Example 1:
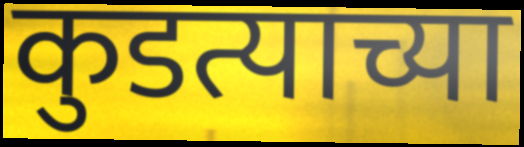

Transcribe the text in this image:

कुडत्याच्या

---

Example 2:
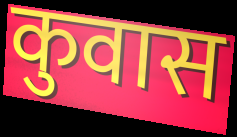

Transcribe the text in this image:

कुवास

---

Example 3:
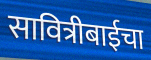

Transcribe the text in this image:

सावित्रीबाईचा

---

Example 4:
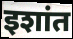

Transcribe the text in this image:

इशांत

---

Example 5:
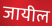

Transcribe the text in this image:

जायील